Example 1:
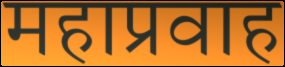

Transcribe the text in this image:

महाप्रवाह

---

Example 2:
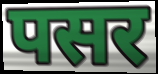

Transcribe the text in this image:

पसर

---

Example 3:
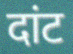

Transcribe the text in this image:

दांट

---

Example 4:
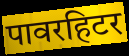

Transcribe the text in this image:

पावरहिटर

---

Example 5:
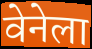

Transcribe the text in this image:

वेनेला